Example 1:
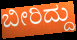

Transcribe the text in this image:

ಬೀರಿದ್ದು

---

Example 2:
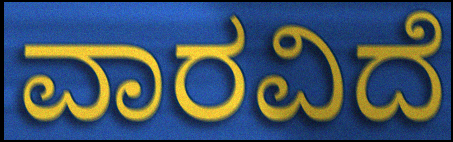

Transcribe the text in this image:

ವಾರವಿದೆ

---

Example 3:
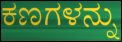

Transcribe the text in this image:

ಕಣಗಳನ್ನು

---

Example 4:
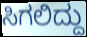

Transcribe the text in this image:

ಸಿಗಲಿದ್ದು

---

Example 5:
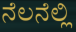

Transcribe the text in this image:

ನೆಲನೆಲ್ಲಿ